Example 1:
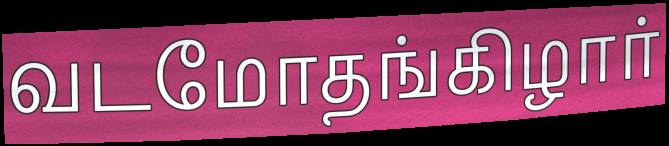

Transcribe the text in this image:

வடமோதங்கிழார்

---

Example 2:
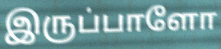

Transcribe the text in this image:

இருப்பாளோ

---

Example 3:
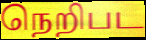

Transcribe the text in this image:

நெறிபட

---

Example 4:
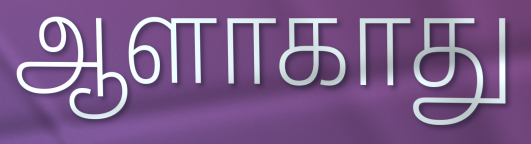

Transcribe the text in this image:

ஆளாகாது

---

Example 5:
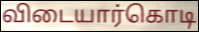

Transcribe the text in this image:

விடையார்கொடி